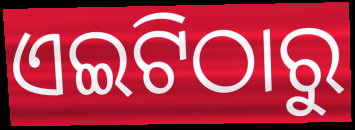
ଏଇଟିଠାରୁ